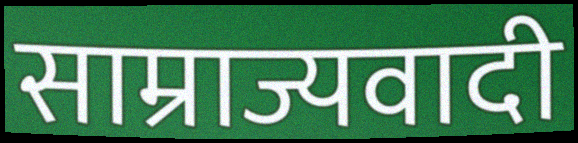
साम्राज्यवादी